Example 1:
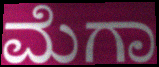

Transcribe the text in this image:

ಮೆಗಾ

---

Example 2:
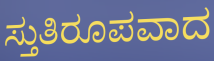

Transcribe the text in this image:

ಸ್ತುತಿರೂಪವಾದ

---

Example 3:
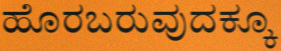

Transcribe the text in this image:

ಹೊರಬರುವುದಕ್ಕೂ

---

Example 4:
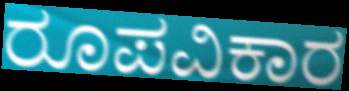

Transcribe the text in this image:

ರೂಪವಿಕಾರ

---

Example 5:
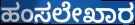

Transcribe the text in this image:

ಹಂಸಲೇಖಾರ